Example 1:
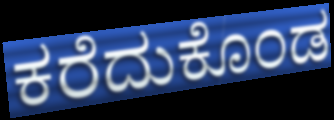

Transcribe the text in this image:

ಕರೆದುಕೊಂಡ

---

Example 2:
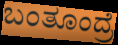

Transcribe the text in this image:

ಬಂತೂಂದ್ರೆ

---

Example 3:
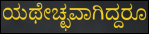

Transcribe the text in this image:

ಯಥೇಚ್ಛವಾಗಿದ್ದರೂ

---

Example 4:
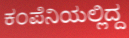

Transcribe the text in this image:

ಕಂಪೆನಿಯಲ್ಲಿದ್ದ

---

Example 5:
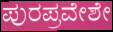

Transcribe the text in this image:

ಪುರಪ್ರವೇಶೇ